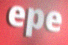
epe